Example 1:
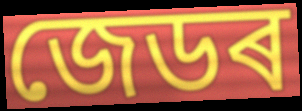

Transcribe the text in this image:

জেডৰ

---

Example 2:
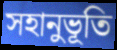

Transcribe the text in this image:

সহানুভূতি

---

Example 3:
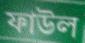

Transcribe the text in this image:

ফাউল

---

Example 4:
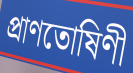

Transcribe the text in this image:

প্ৰাণতোষিণী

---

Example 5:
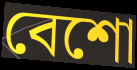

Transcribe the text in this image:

বেশো